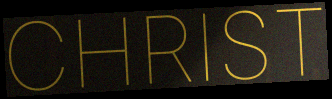
CHRIST